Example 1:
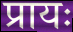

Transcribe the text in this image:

प्रायः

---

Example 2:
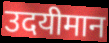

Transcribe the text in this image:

उदयीमान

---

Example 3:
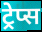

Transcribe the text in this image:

ट्रेप्स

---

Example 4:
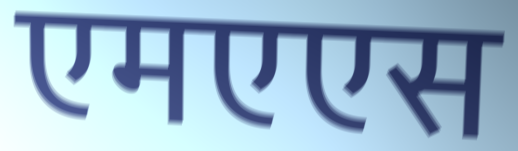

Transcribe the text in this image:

एमएएस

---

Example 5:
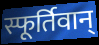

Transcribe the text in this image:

स्फूर्तिवान्